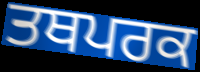
ਤਥਪਰਕ